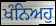
ਖੰਨਿਅਹੁ